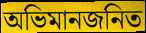
অভিমানজনিত